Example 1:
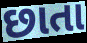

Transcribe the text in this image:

છાતા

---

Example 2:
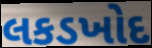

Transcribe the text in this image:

લકડખોદ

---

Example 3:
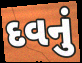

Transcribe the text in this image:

દવનું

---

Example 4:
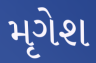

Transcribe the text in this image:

મૃગેશ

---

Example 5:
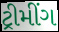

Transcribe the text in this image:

ટ્રીમીંગ